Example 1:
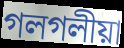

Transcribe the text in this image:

গলগলীয়া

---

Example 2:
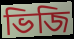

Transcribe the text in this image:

ভিজি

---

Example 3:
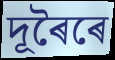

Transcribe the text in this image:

দূৰৈৰে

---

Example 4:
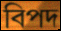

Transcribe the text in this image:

বিপদ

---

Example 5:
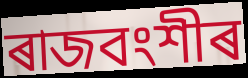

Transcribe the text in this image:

ৰাজবংশীৰ